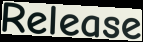
Release